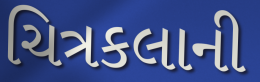
ચિત્રકલાની